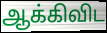
ஆக்கிவிட